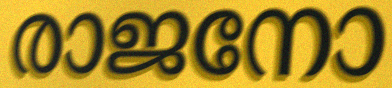
രാജനോ